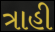
ત્રાહી